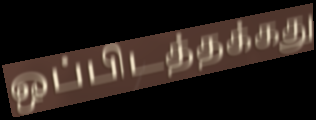
ஒப்பிடத்தக்கது